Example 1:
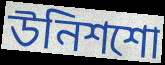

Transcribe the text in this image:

উনিশশো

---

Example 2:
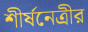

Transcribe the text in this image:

শীর্ষনেত্রীর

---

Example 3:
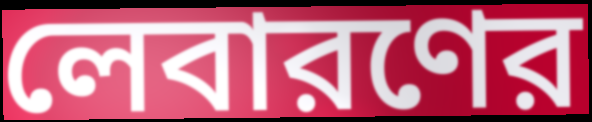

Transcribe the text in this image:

লেবারণের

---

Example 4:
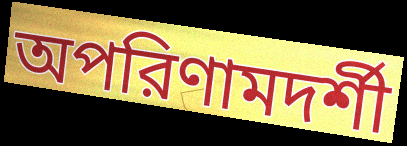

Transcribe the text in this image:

অপরিণামদর্শী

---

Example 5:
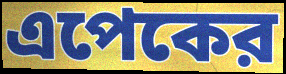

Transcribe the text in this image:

এপেকের